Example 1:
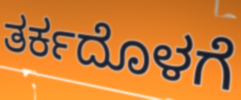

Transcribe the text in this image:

ತರ್ಕದೊಳಗೆ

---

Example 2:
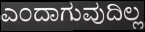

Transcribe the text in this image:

ಎಂದಾಗುವುದಿಲ್ಲ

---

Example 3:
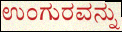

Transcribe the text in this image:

ಉಂಗುರವನ್ನು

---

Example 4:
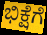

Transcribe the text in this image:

ಭಿಕ್ಷೆಗೆ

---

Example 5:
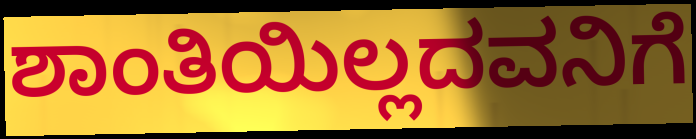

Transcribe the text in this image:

ಶಾಂತಿಯಿಲ್ಲದವನಿಗೆ